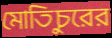
মোতিচুরের